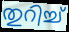
തുറിച്ച്